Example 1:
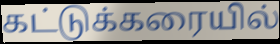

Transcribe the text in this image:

கட்டுக்கரையில்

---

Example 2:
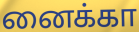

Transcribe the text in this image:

னைக்கா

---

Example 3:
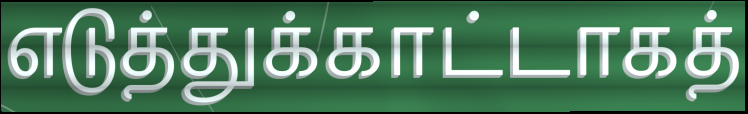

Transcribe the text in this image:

எடுத்துக்காட்டாகத்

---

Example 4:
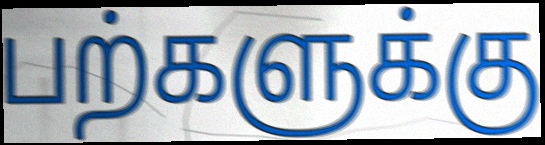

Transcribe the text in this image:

பற்களுக்கு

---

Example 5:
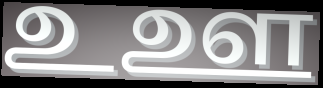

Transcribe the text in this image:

உஊ